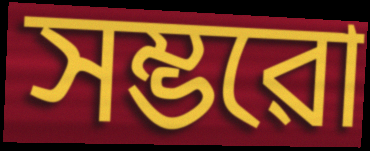
সম্ভৱো